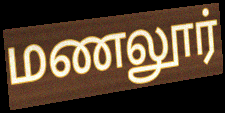
மணலூர்